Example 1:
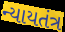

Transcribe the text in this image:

ન્યાયતંત્ર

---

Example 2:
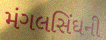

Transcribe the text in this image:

મંગલસિંઘની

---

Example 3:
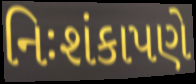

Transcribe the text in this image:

નિઃશંકાપણે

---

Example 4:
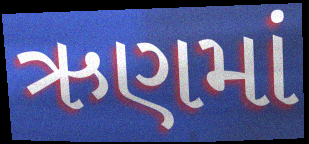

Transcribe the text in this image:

ઋણમાં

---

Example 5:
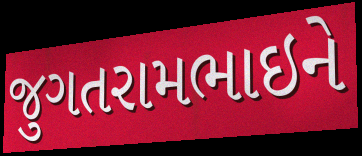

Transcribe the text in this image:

જુગતરામભાઇને